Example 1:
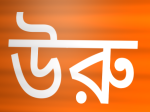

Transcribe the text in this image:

উরু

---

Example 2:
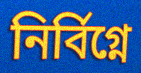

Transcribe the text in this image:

নির্বিগ্নে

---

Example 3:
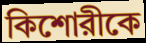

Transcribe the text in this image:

কিশোরীকে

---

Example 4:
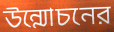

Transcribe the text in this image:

উন্মোচনের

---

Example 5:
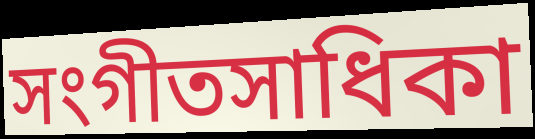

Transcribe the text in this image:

সংগীতসাধিকা